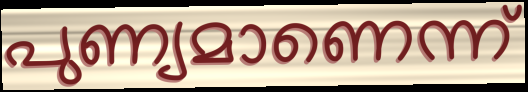
പുണ്യമാണെന്ന്